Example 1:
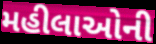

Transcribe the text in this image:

મહીલાઓની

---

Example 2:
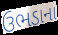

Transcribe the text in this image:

ઉભડાના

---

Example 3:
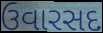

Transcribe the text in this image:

ઉવારસદ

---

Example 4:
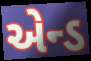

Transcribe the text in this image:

એન્ડ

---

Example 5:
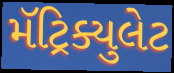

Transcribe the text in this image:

મૅટ્રિક્યુલેટ